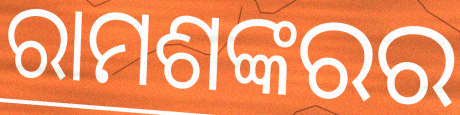
ରାମଶଙ୍କରର